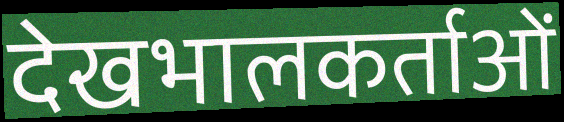
देखभालकर्ताओं